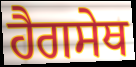
ਹੈਗਸੇਥ